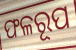
ଫଳରୂପ